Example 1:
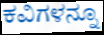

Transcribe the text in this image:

ಕವಿಗಳನ್ನೂ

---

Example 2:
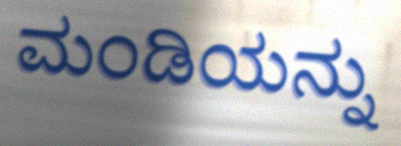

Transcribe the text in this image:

ಮಂಡಿಯನ್ನು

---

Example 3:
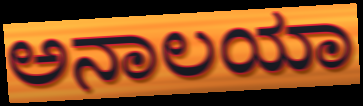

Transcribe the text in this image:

ಅನಾಲಯಾ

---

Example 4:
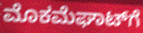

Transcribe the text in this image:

ಮೊಕಮೆಘಾಟ್‌ಗೆ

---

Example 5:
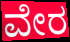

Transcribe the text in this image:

ವೇರ